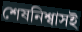
শেষনিশ্বাসই